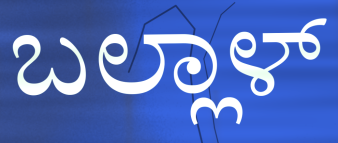
ಬಲ್ಲಾಳ್